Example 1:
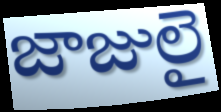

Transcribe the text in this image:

జాజులై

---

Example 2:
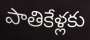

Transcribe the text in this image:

పాతికేళ్లకు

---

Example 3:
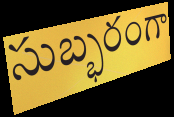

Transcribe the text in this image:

సుబ్భరంగా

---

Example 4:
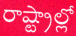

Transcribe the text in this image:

రాష్ట్రాల్లో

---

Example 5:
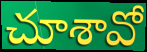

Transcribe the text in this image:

చూశావో